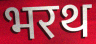
भरथ